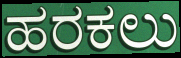
ಹರಕಲು